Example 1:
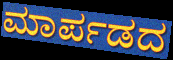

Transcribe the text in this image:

ಮಾರ್ಪಡದ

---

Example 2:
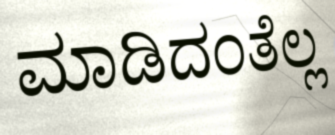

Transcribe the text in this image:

ಮಾಡಿದಂತೆಲ್ಲ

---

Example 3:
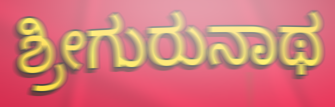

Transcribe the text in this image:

ಶ್ರೀಗುರುನಾಥ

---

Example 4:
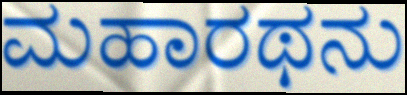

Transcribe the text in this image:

ಮಹಾರಥನು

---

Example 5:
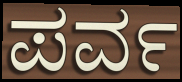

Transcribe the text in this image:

ಪರ್ವ